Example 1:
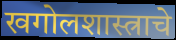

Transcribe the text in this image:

खगोलशास्त्राचे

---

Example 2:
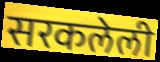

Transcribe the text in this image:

सरकलेली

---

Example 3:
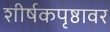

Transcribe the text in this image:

शीर्षकपृष्ठावर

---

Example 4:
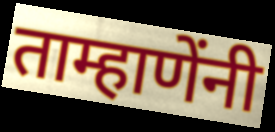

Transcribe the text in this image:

ताम्हाणेंनी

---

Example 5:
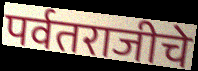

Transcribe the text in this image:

पर्वतराजीचे